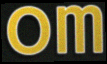
om